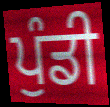
ਪੁੰਡੀ